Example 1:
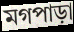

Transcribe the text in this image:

মগপাড়া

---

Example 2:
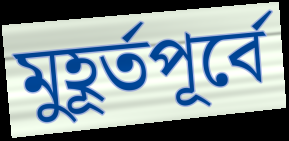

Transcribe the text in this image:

মুহূর্তপূর্বে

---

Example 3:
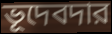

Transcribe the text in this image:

ভূদেবদার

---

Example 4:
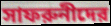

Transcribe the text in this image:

সাফরুনীদের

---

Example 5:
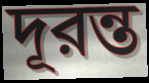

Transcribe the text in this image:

দূরন্ত